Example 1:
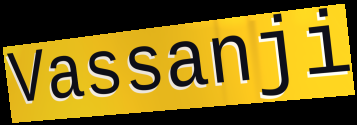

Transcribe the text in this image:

Vassanji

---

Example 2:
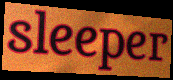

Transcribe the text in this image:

sleeper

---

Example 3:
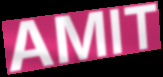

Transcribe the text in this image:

AMIT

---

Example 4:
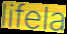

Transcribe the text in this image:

lifela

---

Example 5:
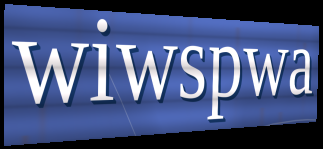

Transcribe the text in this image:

wiwspwa